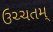
ઉચ્ચતમ્